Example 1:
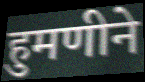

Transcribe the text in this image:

हुमणीने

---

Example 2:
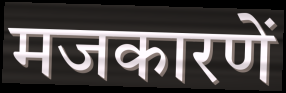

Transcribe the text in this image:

मजकारणें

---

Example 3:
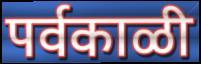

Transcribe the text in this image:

पर्वकाळी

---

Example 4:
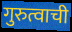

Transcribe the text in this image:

गुरुत्वाची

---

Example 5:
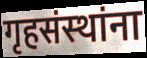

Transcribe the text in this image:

गृहसंस्थांना